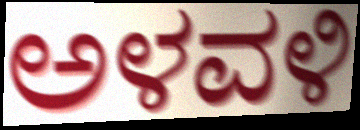
ಅಳವಳಿ